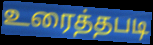
உரைத்தபடி